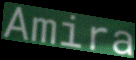
Amira